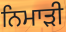
ਨਿਮਾੜੀ